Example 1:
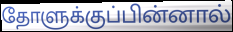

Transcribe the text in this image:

தோளுக்குப்பின்னால்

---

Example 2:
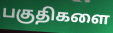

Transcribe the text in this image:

பகுதிகளை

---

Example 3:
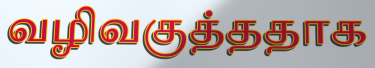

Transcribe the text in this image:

வழிவகுத்ததாக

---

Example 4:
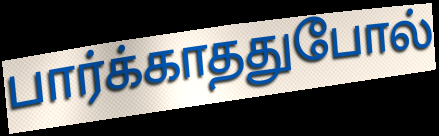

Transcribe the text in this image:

பார்க்காததுபோல்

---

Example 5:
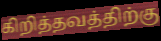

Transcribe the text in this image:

கிறித்தவத்திற்கு